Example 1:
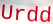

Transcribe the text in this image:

Urdd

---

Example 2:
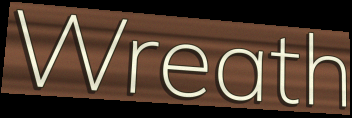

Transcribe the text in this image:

Wreath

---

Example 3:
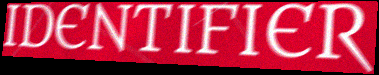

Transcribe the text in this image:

IDENTIFIER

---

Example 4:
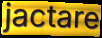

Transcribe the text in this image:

jactare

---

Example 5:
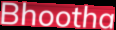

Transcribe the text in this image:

Bhootha